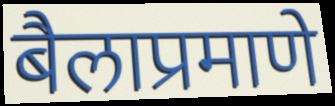
बैलाप्रमाणे